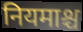
नियमाश्च